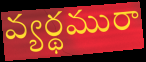
వ్యర్థమురా